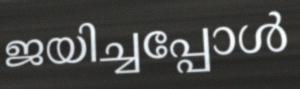
ജയിച്ചപ്പോൾ